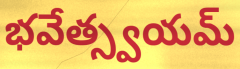
భవేత్స్వయమ్